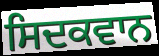
ਸਿਦਕਵਾਨ